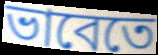
ভাবেতে